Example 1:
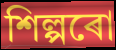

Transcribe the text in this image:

শিল্পৰো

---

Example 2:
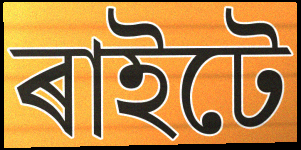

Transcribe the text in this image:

ৰাইটে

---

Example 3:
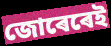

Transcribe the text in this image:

জোৰেৰেই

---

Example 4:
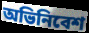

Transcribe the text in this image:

অভিনিবেশ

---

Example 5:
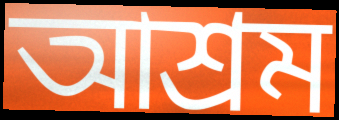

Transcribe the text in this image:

আশ্ৰম